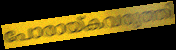
പോരായ്കവരുത്തി